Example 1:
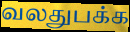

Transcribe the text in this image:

வலதுபக்க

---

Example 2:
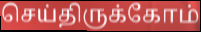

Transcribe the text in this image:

செய்திருக்கோம்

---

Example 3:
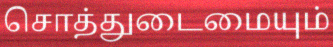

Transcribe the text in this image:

சொத்துடைமையும்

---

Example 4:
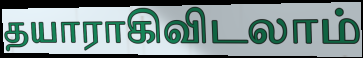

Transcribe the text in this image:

தயாராகிவிடலாம்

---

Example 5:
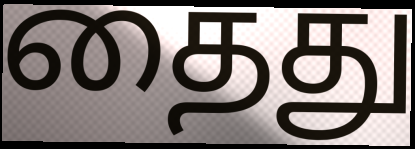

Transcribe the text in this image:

தைது